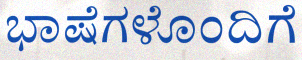
ಭಾಷೆಗಳೊಂದಿಗೆ